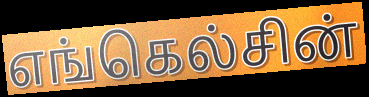
எங்கெல்சின்